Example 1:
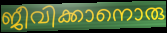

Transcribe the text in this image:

ജീവിക്കാനൊരു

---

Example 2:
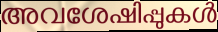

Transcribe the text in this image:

അവശേഷിപ്പുകൾ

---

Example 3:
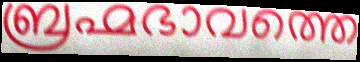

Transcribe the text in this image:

ബ്രഹ്മഭാവത്തെ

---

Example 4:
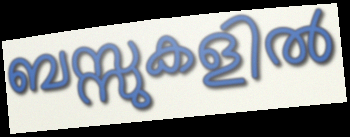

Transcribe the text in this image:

ബസ്സുകളിൽ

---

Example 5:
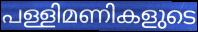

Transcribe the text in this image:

പള്ളിമണികളുടെ